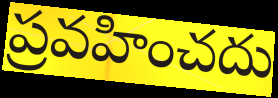
ప్రవహించదు